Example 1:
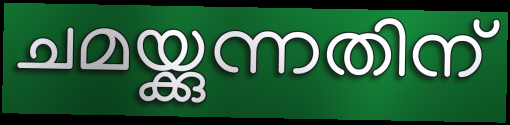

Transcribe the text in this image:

ചമയ്ക്കുന്നതിന്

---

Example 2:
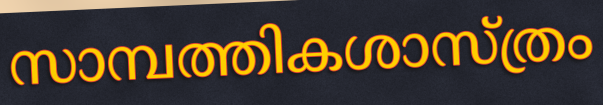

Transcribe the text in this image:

സാമ്പത്തികശാസ്ത്രം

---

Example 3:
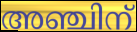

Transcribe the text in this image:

അഞ്ചിന്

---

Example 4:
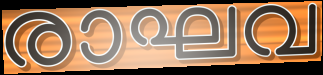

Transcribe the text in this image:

രാഘവ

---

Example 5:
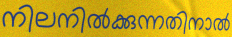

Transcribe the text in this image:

നിലനിൽക്കുന്നതിനാൽ